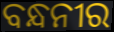
ବନ୍ଧନୀର